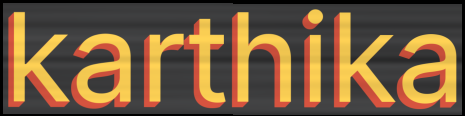
karthika